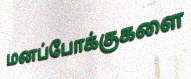
மனப்போக்குகளை